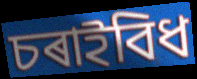
চৰাইবিধ